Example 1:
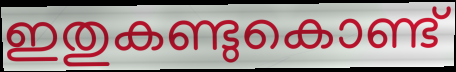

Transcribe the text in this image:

ഇതുകണ്ടുകൊണ്ട്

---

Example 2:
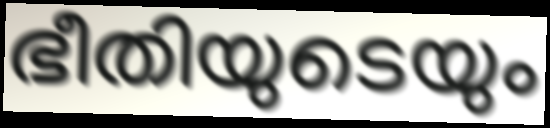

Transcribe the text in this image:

ഭീതിയുടെയും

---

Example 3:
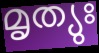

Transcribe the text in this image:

മൃത്യുഃ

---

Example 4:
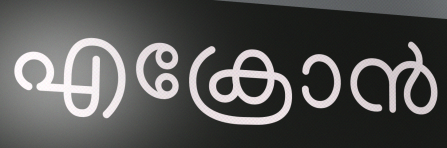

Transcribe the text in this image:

എക്രോൻ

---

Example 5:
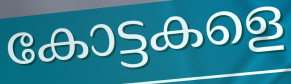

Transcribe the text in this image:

കോട്ടകളെ